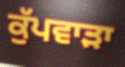
ਕੁੱਪਵਾੜਾ